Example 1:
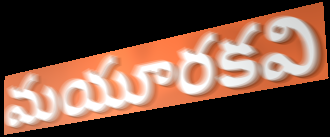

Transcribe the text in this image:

మయూరకవి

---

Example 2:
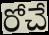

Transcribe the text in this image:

రోచే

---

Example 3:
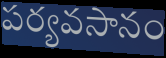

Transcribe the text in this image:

పర్యవసానం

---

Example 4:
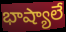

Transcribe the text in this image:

భాష్యాలే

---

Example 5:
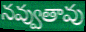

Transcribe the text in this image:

నవ్వుతావు